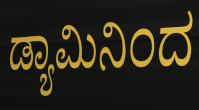
ಡ್ಯಾಮಿನಿಂದ